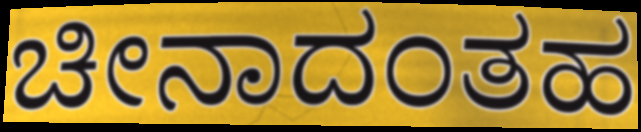
ಚೀನಾದಂತಹ